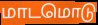
மாடமொடு